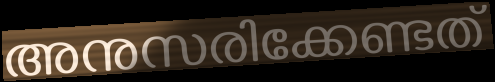
അനുസരിക്കേണ്ടത്